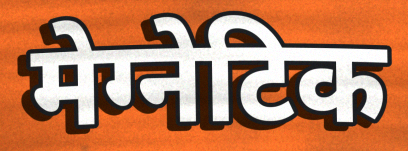
मेग्नेटिक